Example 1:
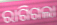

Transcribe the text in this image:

ରାଗିଗଲା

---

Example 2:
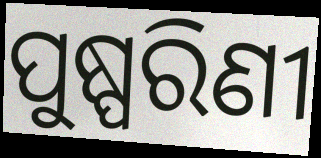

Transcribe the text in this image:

ପୁଷ୍ପରିଣୀ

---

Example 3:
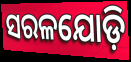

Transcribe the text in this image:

ସରଳଯୋଡ଼ି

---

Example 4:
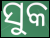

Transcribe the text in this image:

ସୁକ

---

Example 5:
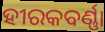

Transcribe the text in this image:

ହୀରକବର୍ଣ୍ଣା